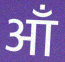
आँ